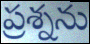
ప్రశ్నను